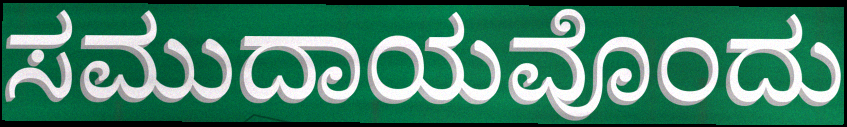
ಸಮುದಾಯವೊಂದು